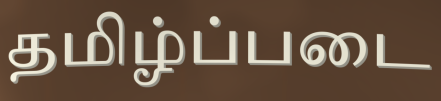
தமிழ்ப்படை